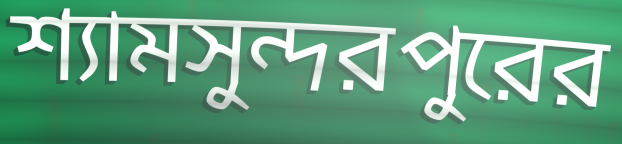
শ্যামসুন্দরপুরের